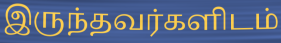
இருந்தவர்களிடம்